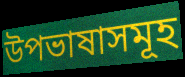
উপভাষাসমূহ